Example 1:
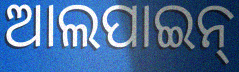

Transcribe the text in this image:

ଆଲପାଇନ୍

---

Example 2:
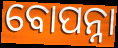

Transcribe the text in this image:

ବୋପନ୍ନା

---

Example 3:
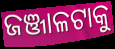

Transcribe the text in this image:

ଜଞ୍ଜାଳଟାକୁ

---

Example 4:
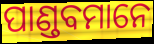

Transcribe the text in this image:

ପାଣ୍ଡବମାନେ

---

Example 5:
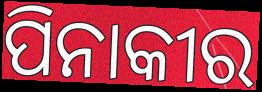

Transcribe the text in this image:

ପିନାକୀର